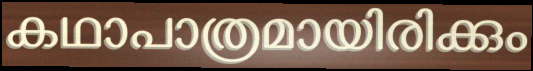
കഥാപാത്രമായിരിക്കും